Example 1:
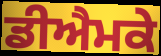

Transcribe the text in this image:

ਡੀਐਮਕੇ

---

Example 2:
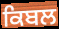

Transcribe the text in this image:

ਕਿਬਲ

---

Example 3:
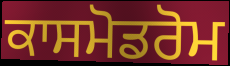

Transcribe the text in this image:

ਕਾਸਮੋਡਰੋਮ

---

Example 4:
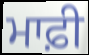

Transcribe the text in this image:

ਮਾਫ਼ੀ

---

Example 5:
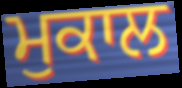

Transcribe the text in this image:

ਮੁਕਾਲ